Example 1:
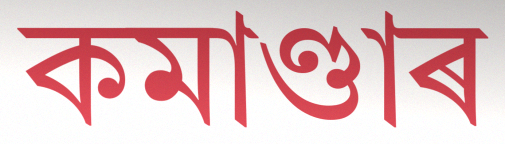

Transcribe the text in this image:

কমাণ্ডাৰ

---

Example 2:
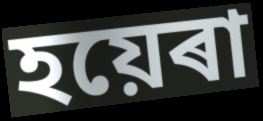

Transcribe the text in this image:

হয়েৰা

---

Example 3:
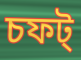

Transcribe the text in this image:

চফট্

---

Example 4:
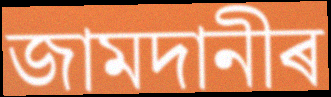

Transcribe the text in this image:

জামদানীৰ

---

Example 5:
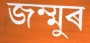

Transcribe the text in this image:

জম্মুৰ